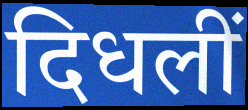
दिधलीं